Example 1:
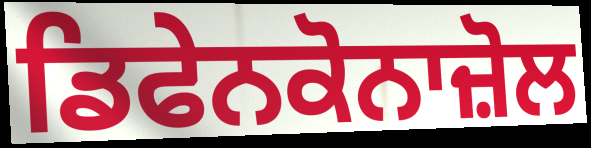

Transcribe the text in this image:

ਡਿਫੇਨਕੋਨਾਜ਼ੋਲ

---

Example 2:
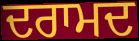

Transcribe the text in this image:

ਦਰਾਮਦ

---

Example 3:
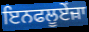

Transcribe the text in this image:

ਇਨਫਲੂਏਂਜ਼ਾ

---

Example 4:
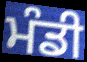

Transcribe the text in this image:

ਮੰਡੀ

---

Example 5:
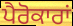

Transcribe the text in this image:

ਪੈਰੋਕਾਰਾਂ